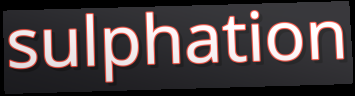
sulphation